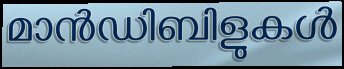
മാൻഡിബിളുകൾ